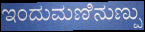
ಇಂದುಮಣಿನುಣ್ಪು